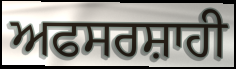
ਅਫਸਰਸ਼ਾਹੀ